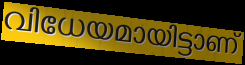
വിധേയമായിട്ടാണ്